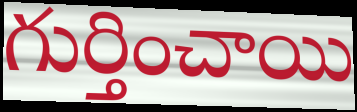
గుర్తించాయి